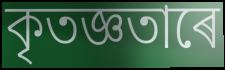
কৃতজ্ঞতাৰে